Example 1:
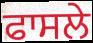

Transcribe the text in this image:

ਫਾਸਲੇ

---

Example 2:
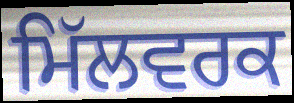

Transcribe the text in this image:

ਮਿੱਲਵਰਕ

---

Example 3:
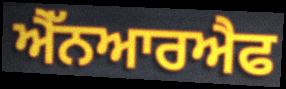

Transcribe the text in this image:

ਐੱਨਆਰਐਫ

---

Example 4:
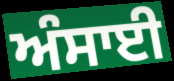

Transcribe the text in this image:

ਅੰਸਾਈ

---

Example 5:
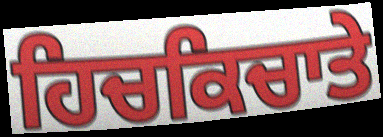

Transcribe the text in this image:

ਹਿਚਕਿਚਾਤੇ